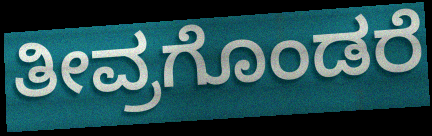
ತೀವ್ರಗೊಂಡರೆ